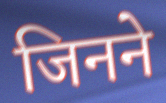
जिनने